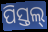
ପିସ୍ତଲ୍